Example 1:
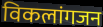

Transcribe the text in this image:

विकलांगजन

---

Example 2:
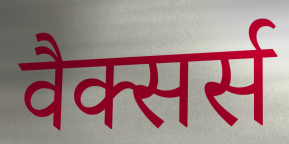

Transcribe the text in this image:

वैक्सर्स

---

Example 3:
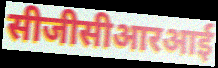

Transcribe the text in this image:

सीजीसीआरआई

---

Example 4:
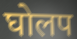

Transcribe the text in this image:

घोलप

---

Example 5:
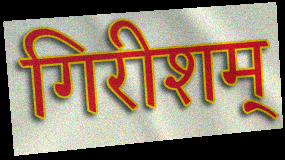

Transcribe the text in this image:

गिरीशम्